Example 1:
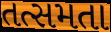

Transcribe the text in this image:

તત્સમતા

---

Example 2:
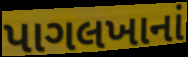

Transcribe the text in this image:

પાગલખાનાં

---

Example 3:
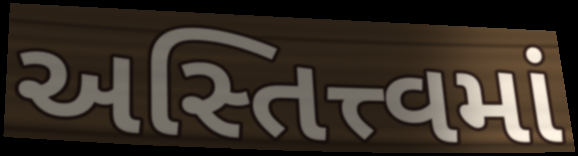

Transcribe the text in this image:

અસ્તિત્ત્વમાં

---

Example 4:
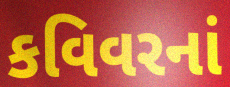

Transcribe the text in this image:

કવિવરનાં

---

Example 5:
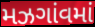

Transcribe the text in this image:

મઝગાંવમાં